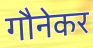
गौनेकर